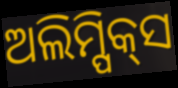
ଅଲିମ୍ପିକ୍‌ସ